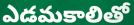
ఎడమకాలితో